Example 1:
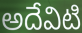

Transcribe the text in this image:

అదేవిటి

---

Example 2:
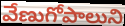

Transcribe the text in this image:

వేణుగోపాలుని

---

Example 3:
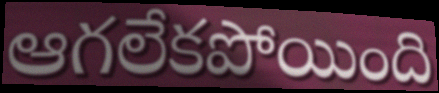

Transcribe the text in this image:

ఆగలేకపోయింది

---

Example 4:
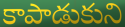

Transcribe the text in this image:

కాపాడుకుని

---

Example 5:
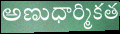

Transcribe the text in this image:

అణుధార్మికత